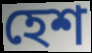
হেশ